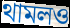
থামলও